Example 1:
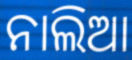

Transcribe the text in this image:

ନାଲିଆ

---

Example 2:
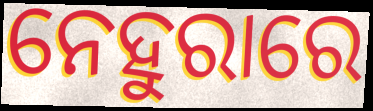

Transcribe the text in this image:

ନେହୁରାରେ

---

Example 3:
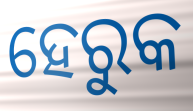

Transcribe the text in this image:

ହେରୁକ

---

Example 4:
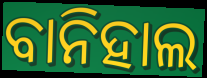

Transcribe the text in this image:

ବାନିହାଲ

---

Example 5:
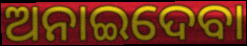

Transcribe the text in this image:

ଅନାଇଦେବା